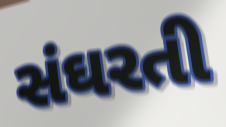
સંઘરતી